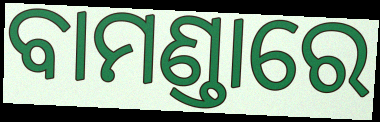
ବାମଣ୍ଡାରେ